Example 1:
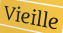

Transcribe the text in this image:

Vieille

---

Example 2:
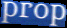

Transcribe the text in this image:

prop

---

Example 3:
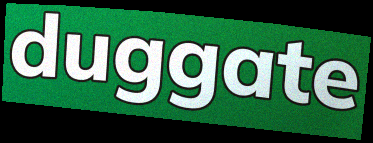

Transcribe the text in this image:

duggate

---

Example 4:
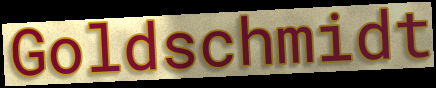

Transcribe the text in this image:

Goldschmidt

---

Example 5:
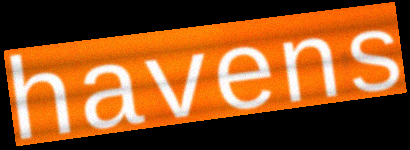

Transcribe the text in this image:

havens